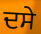
ਦਸੇ